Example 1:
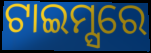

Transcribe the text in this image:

ଟାଇମ୍ସରେ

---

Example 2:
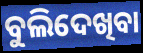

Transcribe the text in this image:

ବୁଲିଦେଖିବା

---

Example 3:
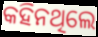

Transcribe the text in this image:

କହିନଥିଲେ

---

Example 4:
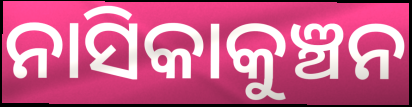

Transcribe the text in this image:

ନାସିକାକୁଞ୍ଚନ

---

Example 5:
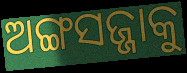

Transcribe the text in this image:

ଅଙ୍ଗସଜ୍ଜାକୁ